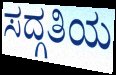
ಸದ್ಗತಿಯ